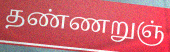
தண்ணறுஞ்